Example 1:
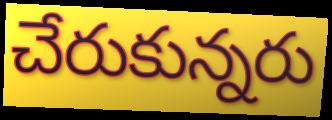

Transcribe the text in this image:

చేరుకున్నరు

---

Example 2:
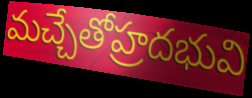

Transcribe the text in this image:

మచ్చేతోహ్రదభువి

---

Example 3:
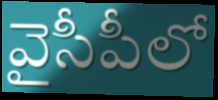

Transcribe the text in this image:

వైసీపీలో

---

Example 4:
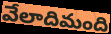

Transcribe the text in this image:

వేలాదిమంది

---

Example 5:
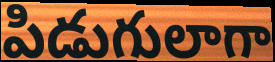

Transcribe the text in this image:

పిడుగులాగా